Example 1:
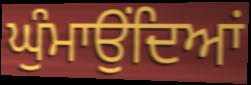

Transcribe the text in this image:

ਘੁੰਮਾਉਂਦਿਆਂ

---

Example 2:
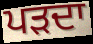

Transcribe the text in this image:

ਪੜਦਾ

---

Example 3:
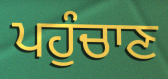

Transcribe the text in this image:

ਪਹੁੰਚਾਣ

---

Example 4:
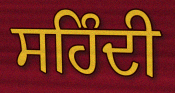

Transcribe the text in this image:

ਸਹਿੰਦੀ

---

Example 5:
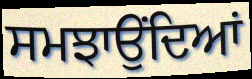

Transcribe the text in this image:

ਸਮਝਾਉਂਦਿਆਂ